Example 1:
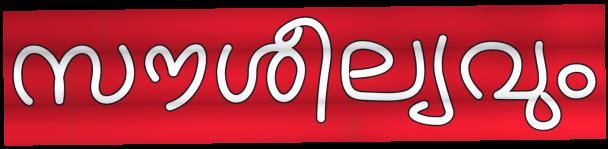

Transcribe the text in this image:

സൗശീല്യവും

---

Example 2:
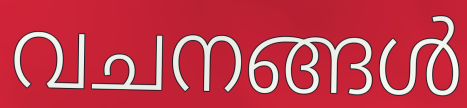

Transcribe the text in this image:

വചനങ്ങൾ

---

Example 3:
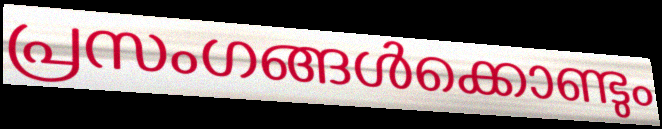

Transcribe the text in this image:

പ്രസംഗങ്ങൾക്കൊണ്ടും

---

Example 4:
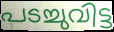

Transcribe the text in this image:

പടച്ചുവിട്ട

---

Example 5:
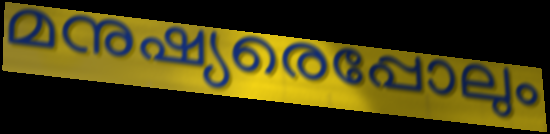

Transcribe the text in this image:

മനുഷ്യരെപ്പോലും